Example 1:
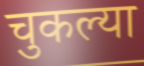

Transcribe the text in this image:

चुकल्या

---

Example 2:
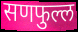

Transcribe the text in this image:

सणफुल्ल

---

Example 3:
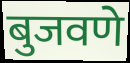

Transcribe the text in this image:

बुजवणे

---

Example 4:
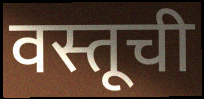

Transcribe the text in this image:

वस्तूची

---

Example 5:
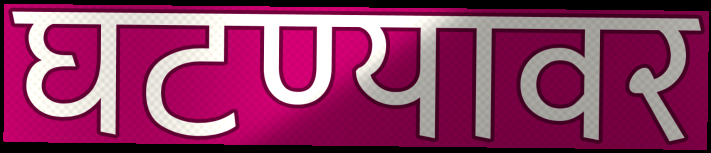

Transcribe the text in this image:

घटण्यावर